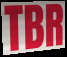
TBR